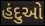
હંદુઓ